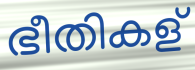
ഭീതികള്